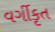
વર્ગીકૃત